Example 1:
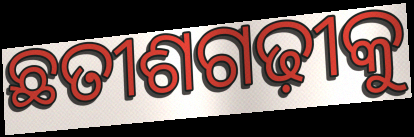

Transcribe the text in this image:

ଛତୀଶଗଢ଼ୀକୁ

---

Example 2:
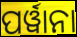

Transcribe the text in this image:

ପର୍ୱାନା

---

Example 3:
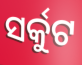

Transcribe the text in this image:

ସର୍କୁଟ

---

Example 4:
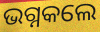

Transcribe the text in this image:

ଭଗ୍ନକଲେ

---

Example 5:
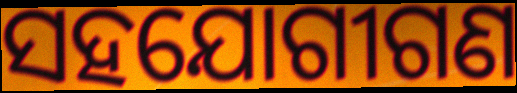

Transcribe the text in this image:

ସହଯୋଗୀଗଣ